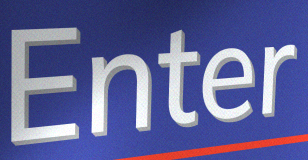
Enter